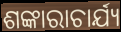
ଶଙ୍କାରାଚାର୍ଯ୍ୟ